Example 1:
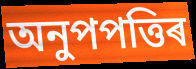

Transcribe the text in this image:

অনুপপত্তিৰ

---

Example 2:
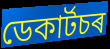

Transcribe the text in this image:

ডেকাৰ্টচৰ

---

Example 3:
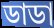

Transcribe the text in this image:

ডাডা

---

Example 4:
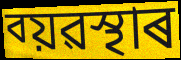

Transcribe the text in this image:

ব্য়ৱস্থাৰ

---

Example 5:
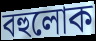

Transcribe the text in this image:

বহুলোক